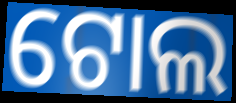
ଟୋଲ